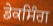
ਡੇਕਸਿੰਗ